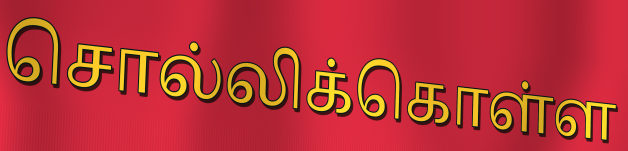
சொல்லிக்கொள்ள